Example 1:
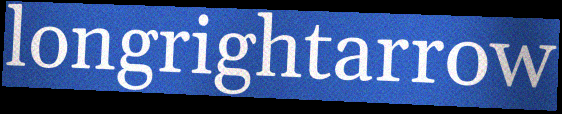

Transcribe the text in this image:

longrightarrow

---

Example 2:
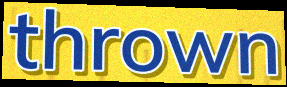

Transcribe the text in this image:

thrown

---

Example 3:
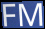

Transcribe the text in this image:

FM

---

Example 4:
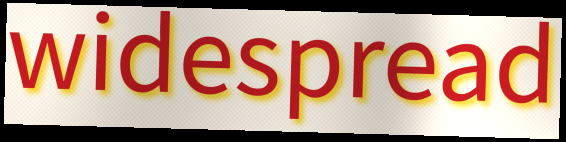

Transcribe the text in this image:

widespread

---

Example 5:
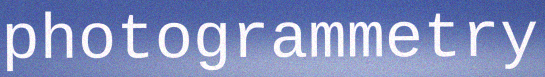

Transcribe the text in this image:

photogrammetry